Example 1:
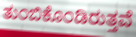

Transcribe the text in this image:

ತುಂಬಿಕೊಂಡಿರುತ್ತವೆ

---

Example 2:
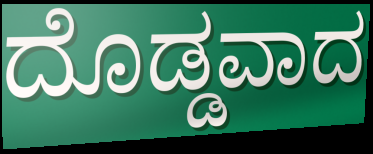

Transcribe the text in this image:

ದೊಡ್ಡವಾದ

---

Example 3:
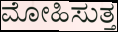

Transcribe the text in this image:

ಮೋಹಿಸುತ್ತ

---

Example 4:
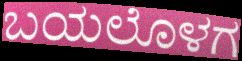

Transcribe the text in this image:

ಬಯಲೊಳಗ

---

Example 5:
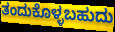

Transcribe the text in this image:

ತಂದುಕೊಳ್ಳಬಹುದು